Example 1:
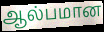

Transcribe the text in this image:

ஆல்பமான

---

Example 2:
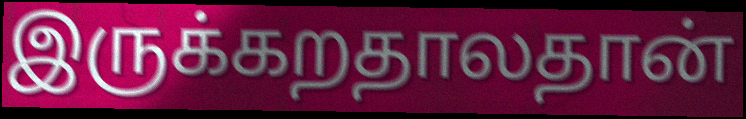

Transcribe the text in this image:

இருக்கறதாலதான்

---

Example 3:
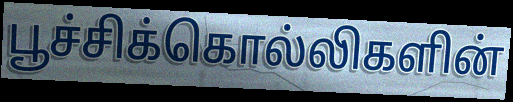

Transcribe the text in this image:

பூச்சிக்கொல்லிகளின்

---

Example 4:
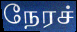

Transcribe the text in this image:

நேரச்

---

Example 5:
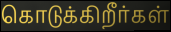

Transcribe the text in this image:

கொடுக்கிறீர்கள்